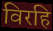
विरहि